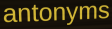
antonyms